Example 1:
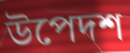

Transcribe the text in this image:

উপেদশ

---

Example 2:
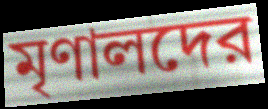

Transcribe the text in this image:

মৃণালদের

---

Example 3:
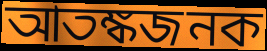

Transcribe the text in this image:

আতঙ্কজনক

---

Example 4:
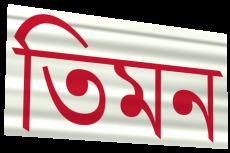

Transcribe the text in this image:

তিমন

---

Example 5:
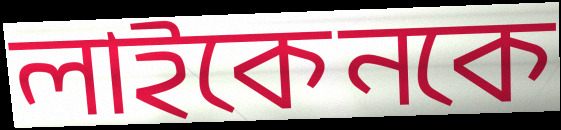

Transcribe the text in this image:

লাইকেনকে